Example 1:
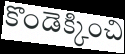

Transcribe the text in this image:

కొండెక్కించి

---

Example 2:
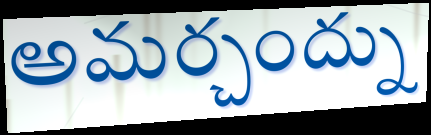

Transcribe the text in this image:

అమర్చంద్ను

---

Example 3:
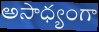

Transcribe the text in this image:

అసాధ్యంగా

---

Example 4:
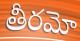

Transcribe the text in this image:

తీరమో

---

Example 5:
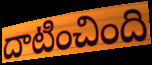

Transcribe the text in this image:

దాటించింది